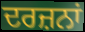
ਦਰਜ਼ਨਾਂ